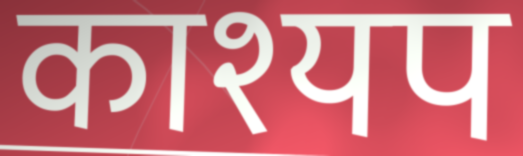
काश्यप